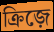
ক্রিজ়ে